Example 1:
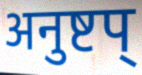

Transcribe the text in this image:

अनुष्टप्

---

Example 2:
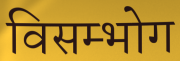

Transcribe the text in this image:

विसम्भोग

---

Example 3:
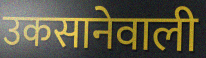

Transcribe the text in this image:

उकसानेवाली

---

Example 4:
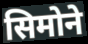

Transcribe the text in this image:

सिमोने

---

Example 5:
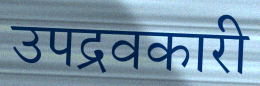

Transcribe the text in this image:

उपद्रवकारी